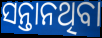
ସନ୍ତାନଥିବା